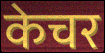
केचर